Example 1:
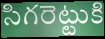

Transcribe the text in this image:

సిగరెట్టుకి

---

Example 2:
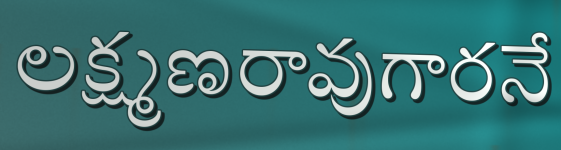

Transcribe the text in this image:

లక్ష్మణరావుగారనే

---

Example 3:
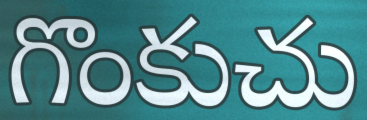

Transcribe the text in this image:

గొంకుచు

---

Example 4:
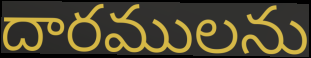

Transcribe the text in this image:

దారములను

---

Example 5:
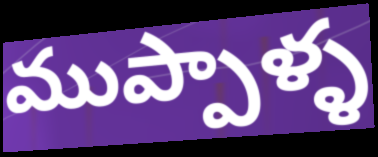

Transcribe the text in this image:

ముప్పాళ్ళ